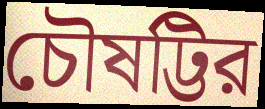
চৌষট্টির